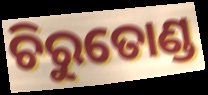
ଚିରୁତୋଣ୍ଡ